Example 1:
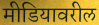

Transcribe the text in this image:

मीडियावरील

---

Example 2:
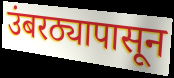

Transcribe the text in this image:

उंबरठ्यापासून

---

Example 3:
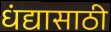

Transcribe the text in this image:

धंद्यासाठी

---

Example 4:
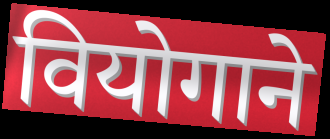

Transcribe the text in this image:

वियोगाने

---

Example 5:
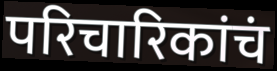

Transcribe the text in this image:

परिचारिकांचं